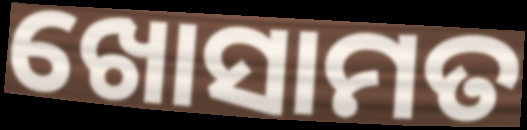
ଖୋସାମତ